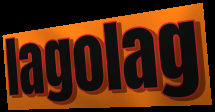
lagolag